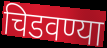
चिडवण्या